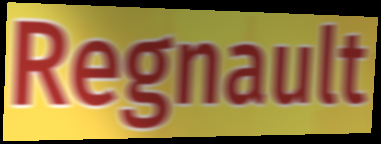
Regnault